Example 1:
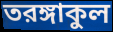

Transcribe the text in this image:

তরঙ্গাকুল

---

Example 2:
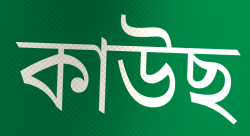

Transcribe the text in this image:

কাউছ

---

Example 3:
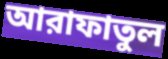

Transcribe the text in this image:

আরাফাতুল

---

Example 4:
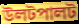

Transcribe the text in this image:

উলটপালট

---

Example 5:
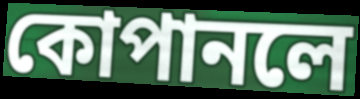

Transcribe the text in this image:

কোপানলে